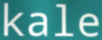
kale